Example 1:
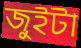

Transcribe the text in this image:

জুইটা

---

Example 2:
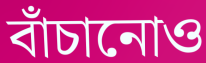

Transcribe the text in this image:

বাঁচানোও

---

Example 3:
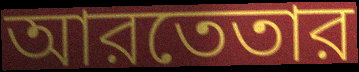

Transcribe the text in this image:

আরতেতার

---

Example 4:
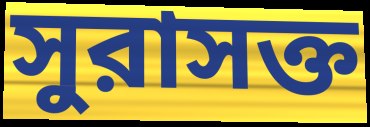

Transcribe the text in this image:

সুরাসক্ত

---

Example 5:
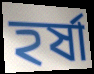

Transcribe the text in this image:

হর্ষা